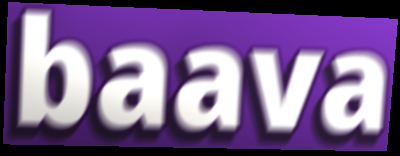
baava